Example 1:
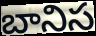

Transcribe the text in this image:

బానిస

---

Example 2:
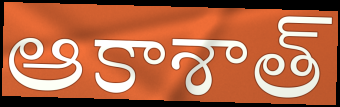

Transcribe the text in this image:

ఆకాశాత్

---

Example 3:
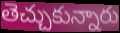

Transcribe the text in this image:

తెచ్చుకున్నారు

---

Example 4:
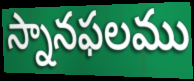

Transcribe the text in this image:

స్నానఫలము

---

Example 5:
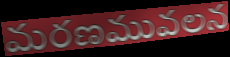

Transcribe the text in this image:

మరణమువలన